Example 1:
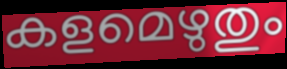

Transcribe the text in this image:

കളമെഴുതും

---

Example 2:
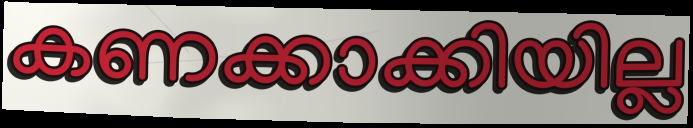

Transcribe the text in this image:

കണക്കാക്കിയില്ല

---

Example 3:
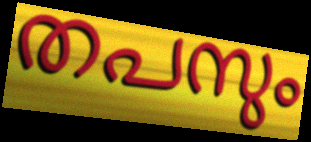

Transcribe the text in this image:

തപസും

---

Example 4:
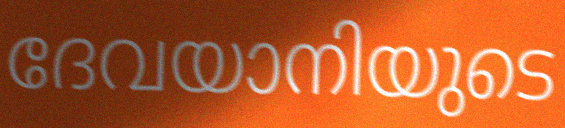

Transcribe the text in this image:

ദേവയാനിയുടെ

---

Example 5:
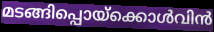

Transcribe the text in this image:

മടങ്ങിപ്പൊയ്ക്കൊൾവിൻ